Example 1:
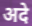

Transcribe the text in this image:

अदे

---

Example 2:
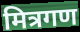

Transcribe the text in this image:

मित्रगण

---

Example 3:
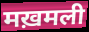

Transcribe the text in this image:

मख़मली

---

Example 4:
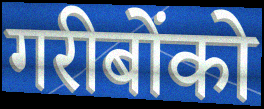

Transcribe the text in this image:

गरीबोंको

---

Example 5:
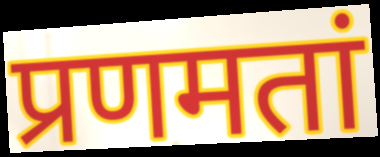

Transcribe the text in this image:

प्रणमतां